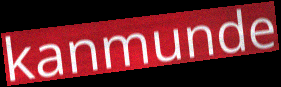
kanmunde